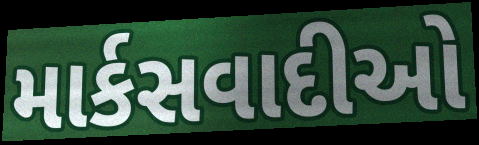
માર્કસવાદીઓ